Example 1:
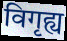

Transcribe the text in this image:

विगृह्य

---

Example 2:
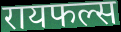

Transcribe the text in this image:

रायफल्स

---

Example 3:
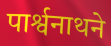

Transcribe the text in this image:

पार्श्वनाथने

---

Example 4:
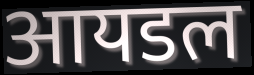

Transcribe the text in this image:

आयडल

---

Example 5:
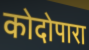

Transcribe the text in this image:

कोदोपारा